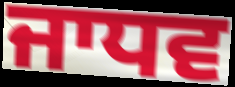
ਜਾਧਵ